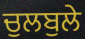
ਚੁਲਬੁਲੇ